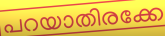
പറയാതിരക്കേ